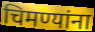
चिमण्यांना